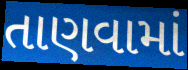
તાણવામાં